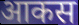
आकस